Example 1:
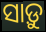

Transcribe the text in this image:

ସାଡ଼ୁ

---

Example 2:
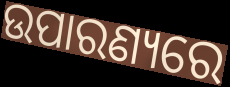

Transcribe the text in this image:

ଉପାରଣ୍ୟରେ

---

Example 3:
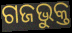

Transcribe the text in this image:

ଗଜଭୁକ୍ତ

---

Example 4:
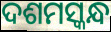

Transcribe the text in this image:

ଦଶମସ୍କନ୍ଧ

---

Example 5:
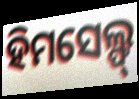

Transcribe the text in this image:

ହିମସେଲ୍ଫ୍